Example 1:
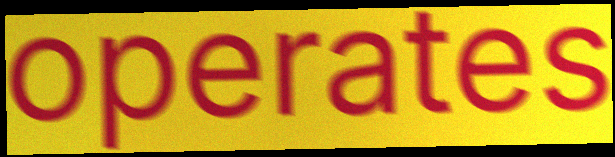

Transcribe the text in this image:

operates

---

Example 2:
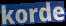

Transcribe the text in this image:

korde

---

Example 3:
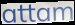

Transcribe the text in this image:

attam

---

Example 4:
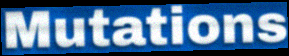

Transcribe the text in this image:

Mutations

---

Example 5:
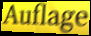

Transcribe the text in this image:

Auflage